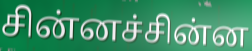
சின்னச்சின்ன